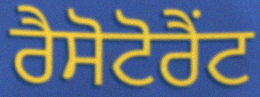
ਰੈਸੋਟੋਰੈਂਟ